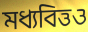
মধ্যবিত্তও